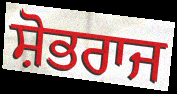
ਸ਼ੋਭਰਾਜ